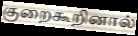
குறைகூறினால்